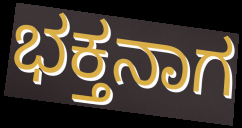
ಭಕ್ತನಾಗ